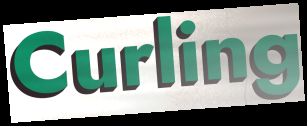
Curling